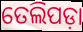
ତେଲିପଡ଼ା